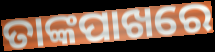
ତାଙ୍କପାଖରେ